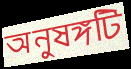
অনুষঙ্গটি